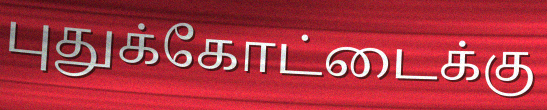
புதுக்கோட்டைக்கு